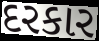
દરકાર